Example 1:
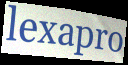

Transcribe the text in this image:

lexapro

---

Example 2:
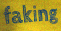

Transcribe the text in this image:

faking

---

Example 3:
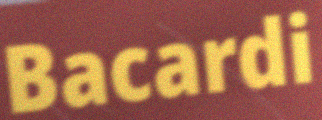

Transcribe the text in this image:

Bacardi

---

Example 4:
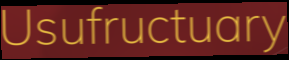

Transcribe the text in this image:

Usufructuary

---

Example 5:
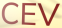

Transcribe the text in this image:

CEV